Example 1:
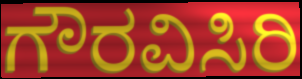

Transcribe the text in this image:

ಗೌರವಿಸಿರಿ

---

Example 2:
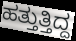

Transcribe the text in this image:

ಹತ್ತುತ್ತಿದ್ದ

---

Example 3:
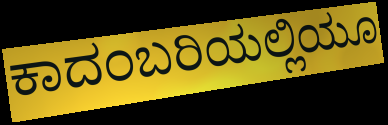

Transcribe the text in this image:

ಕಾದಂಬರಿಯಲ್ಲಿಯೂ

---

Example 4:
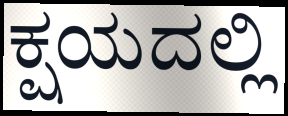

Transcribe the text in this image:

ಕ್ಷಯದಲ್ಲಿ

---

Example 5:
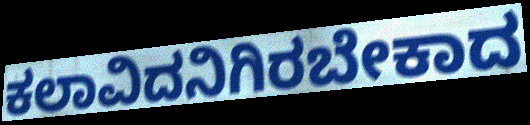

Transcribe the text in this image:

ಕಲಾವಿದನಿಗಿರಬೇಕಾದ